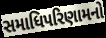
સમાધિપરિણામનો